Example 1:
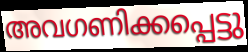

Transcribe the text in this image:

അവഗണിക്കപ്പെട്ടു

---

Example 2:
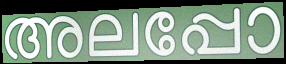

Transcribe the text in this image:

അലപ്പോ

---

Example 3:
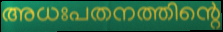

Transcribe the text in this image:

അധഃപതനത്തിന്റെ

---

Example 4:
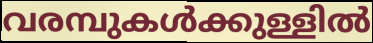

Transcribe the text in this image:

വരമ്പുകൾക്കുള്ളിൽ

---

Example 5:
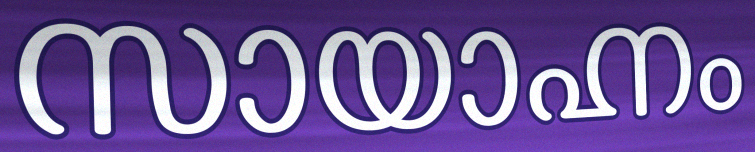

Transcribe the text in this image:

സായാഹ്നം